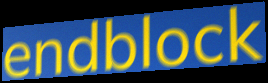
endblock